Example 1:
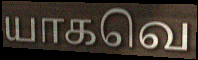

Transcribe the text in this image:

யாகவெ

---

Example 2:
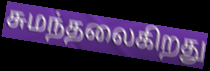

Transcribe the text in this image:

சுமந்தலைகிறது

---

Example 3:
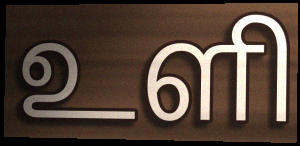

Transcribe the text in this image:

உளி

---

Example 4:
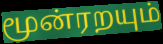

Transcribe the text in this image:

மூன்ரறயும்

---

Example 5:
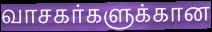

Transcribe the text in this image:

வாசகர்களுக்கான